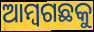
ଆମ୍ବଗଛକୁ